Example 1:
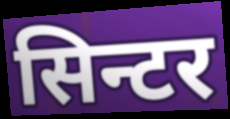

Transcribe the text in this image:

सिन्टर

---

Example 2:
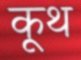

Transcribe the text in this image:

कूथ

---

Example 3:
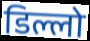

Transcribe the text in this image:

डिल्लो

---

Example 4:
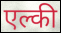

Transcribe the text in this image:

एल्की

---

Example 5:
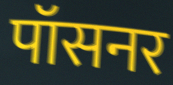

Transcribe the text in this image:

पॉसनर